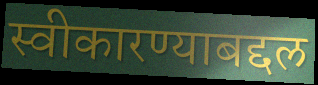
स्वीकारण्याबद्दल